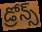
డ్రోన్స్